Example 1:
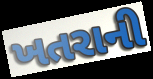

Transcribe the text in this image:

ખતરાની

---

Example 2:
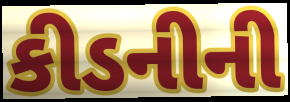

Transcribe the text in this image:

કીડનીની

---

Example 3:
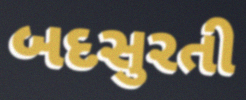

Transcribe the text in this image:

બદસુરતી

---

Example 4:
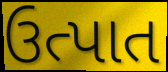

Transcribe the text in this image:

ઉત્પાત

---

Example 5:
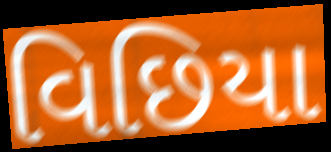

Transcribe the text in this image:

વિછિયા